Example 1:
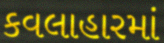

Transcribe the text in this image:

કવલાહારમાં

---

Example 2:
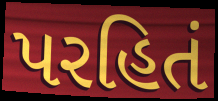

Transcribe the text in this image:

પરહિતં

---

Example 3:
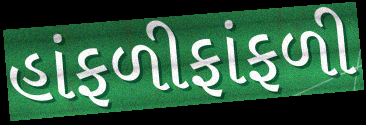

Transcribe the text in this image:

હાંફળીફાંફળી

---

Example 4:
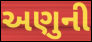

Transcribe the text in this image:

અણુની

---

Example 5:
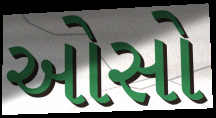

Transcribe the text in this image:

ઓસો